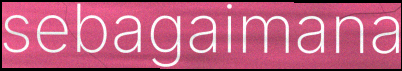
sebagaimana